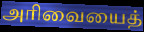
அரிவையைத்